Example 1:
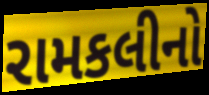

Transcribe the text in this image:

રામકલીનો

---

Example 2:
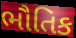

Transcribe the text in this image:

ભૌતિક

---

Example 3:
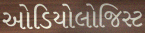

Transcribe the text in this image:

ઓડિયોલોજિસ્ટ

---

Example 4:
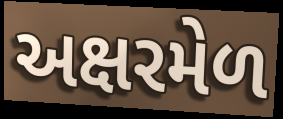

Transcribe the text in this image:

અક્ષરમેળ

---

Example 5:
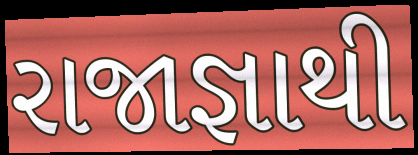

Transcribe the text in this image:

રાજાજ્ઞાથી